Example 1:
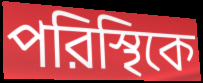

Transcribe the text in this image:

পরিস্থিকে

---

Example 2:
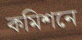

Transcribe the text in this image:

কমিশনে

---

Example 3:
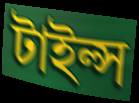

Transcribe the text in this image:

টাইল্স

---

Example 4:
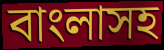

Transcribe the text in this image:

বাংলাসহ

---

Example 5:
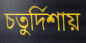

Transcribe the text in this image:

চতুর্দিশায়